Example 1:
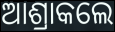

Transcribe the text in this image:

ଆଶ୍ରାକଲେ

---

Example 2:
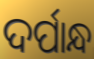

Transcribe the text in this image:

ଦର୍ପାନ୍ଧ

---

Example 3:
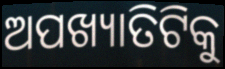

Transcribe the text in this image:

ଅପଖ୍ୟାତିଟିକୁ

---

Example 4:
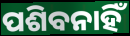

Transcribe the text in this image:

ପଶିବନାହିଁ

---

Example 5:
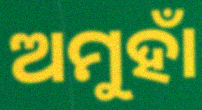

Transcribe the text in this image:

ଅମୁହାଁ